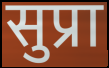
सुप्रा